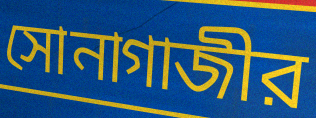
সোনাগাজীর